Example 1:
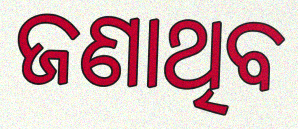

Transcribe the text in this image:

ଜଣାଥିବ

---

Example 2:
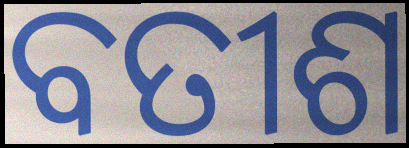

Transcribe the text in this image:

ବତୀଶ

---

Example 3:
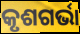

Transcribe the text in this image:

କୃଶଗର୍ଭା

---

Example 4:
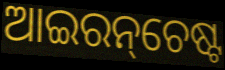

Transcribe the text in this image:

ଆଇରନ୍‌ଚେଷ୍ଟ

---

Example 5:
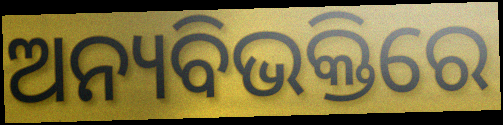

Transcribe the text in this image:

ଅନ୍ୟବିଭକ୍ତିରେ